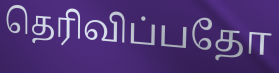
தெரிவிப்பதோ